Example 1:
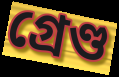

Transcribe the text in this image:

গ্ৰেণ্ড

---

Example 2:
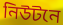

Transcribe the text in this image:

নিউটনে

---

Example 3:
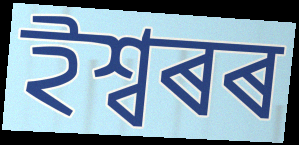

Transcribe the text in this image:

ইশ্বৰৰ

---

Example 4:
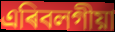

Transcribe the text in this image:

এৰিবলগীয়া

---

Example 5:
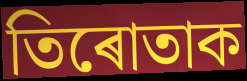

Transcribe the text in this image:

তিৰোতাক